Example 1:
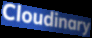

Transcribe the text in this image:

Cloudinary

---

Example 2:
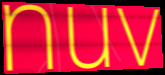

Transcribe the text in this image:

nuv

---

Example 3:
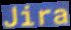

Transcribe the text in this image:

Jira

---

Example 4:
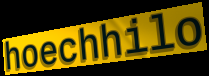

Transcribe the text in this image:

hoechhilo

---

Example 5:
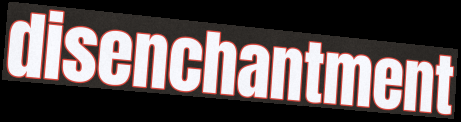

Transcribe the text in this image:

disenchantment